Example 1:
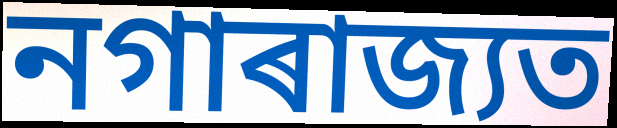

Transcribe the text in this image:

নগাৰাজ্যত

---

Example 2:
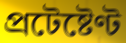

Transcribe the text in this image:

প্ৰটেষ্টেণ্ট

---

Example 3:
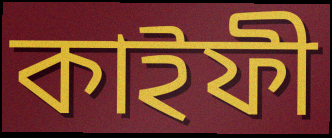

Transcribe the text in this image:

কাইফী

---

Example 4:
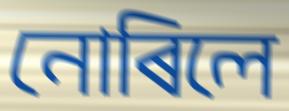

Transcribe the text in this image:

নোৰিলে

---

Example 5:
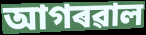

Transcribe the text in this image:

আগৰৱাল